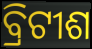
ବ୍ରିଟୀଶ